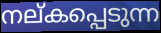
നല്കപ്പെടുന്ന